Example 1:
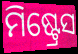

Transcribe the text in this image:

ମିଷ୍ଟ୍ରେସ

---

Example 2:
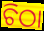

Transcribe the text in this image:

ଚିଠା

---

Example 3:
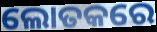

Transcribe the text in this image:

ଲୋତକରେ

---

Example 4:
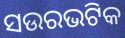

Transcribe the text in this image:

ସଉରଭଟିକ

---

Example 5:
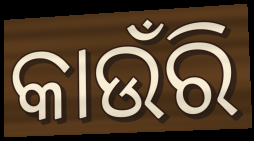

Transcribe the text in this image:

କାଉଁରି